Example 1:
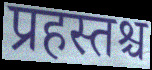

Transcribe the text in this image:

प्रहस्तश्च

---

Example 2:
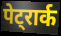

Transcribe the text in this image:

पेट्रार्क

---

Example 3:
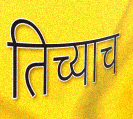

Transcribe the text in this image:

तिच्याच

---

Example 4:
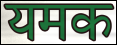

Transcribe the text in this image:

यमक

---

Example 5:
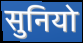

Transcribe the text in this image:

सुनियो